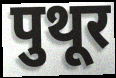
पुथूर